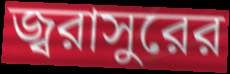
জ্বরাসুরের